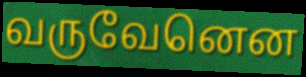
வருவேனென